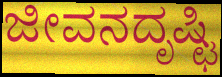
ಜೀವನದೃಷ್ಟಿ